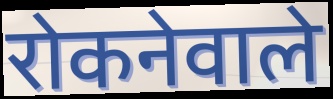
रोकनेवाले